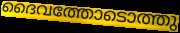
ദൈവത്തോടൊത്തു